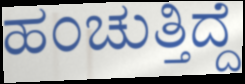
ಹಂಚುತ್ತಿದ್ದೆ